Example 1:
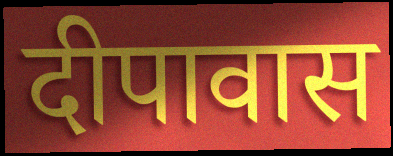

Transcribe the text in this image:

दीपावास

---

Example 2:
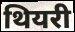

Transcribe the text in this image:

थियरी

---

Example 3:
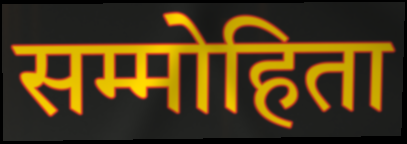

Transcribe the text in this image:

सम्मोहिता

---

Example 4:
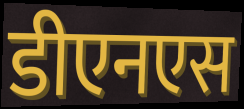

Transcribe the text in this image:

डीएनएस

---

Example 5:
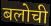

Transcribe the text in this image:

बलोची